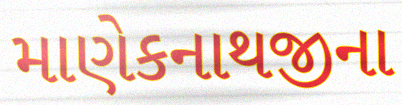
માણેકનાથજીના